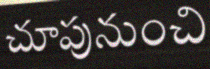
చూపునుంచి